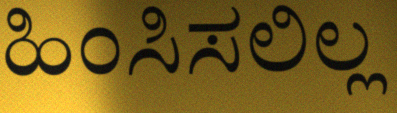
ಹಿಂಸಿಸಲಿಲ್ಲ